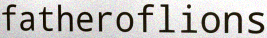
fatheroflions